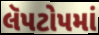
લૅપટોપમાં